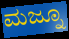
ಮಜ್ನೂ